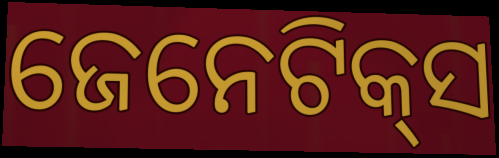
ଜେନେଟିକ୍‌ସ